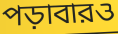
পড়াবারও